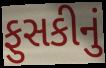
ફુસકીનું